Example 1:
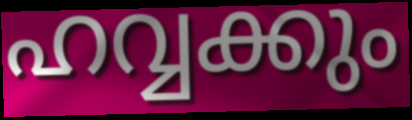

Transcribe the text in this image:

ഹവ്വക്കും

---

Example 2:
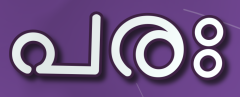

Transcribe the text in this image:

പരഃ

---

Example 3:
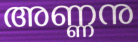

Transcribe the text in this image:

അണ്ണനു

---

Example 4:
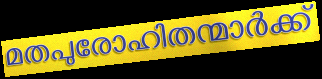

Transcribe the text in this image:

മതപുരോഹിതന്മാർക്ക്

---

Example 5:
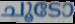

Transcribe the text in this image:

ചൂടോ